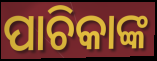
ପାଚିକାଙ୍କ